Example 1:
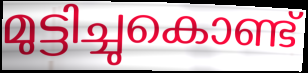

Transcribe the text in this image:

മുട്ടിച്ചുകൊണ്ട്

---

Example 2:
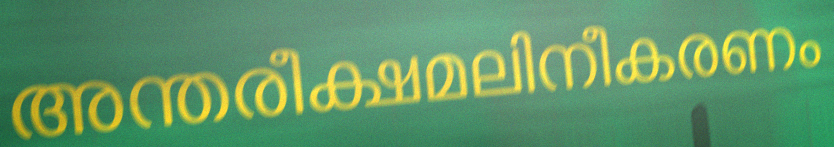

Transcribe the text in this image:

അന്തരീക്ഷമലിനീകരണം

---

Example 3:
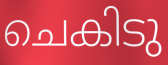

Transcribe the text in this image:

ചെകിടു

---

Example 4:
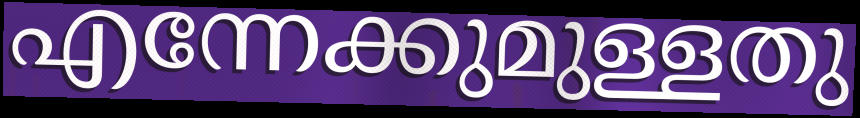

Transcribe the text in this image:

എന്നേക്കുമുള്ളതു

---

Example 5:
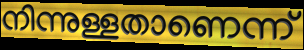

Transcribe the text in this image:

നിന്നുള്ളതാണെന്ന്